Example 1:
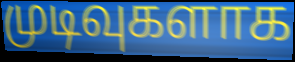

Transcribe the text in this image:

முடிவுகளாக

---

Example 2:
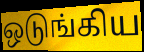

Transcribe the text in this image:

ஒடுங்கிய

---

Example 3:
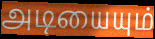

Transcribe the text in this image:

அடியையும்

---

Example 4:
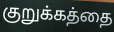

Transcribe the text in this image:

குறுக்கத்தை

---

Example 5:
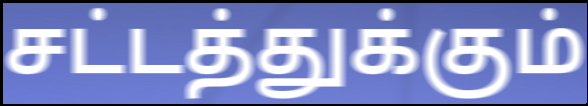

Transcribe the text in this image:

சட்டத்துக்கும்